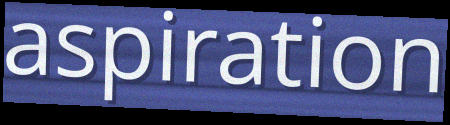
aspiration